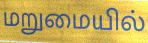
மறுமையில்